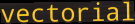
vectorial